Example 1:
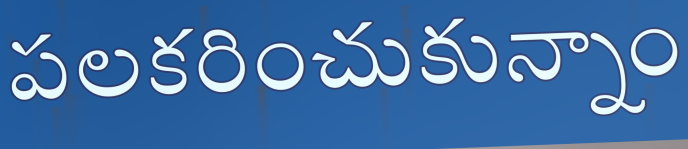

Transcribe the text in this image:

పలకరించుకున్నాం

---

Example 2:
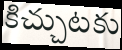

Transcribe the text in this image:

కిచ్చుటకు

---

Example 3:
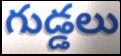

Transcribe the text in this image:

గుడ్డలు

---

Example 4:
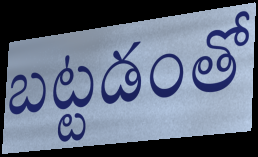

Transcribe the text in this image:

బట్టడంతో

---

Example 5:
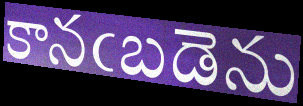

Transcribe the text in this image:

కానఁబడెను